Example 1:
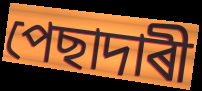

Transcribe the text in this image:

পেছাদাৰী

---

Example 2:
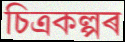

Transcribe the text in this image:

চিত্ৰকল্পৰ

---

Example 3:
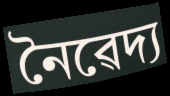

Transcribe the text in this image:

নৈৱেদ্য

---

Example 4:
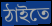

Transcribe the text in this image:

ঠাইতে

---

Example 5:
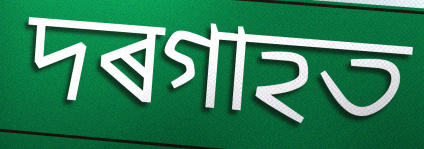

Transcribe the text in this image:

দৰগাহত